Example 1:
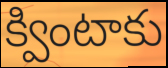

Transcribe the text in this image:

క్వింటాకు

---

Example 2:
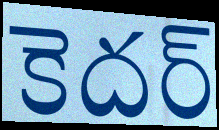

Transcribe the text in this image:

కెదర్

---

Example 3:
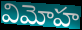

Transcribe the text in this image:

విమోహ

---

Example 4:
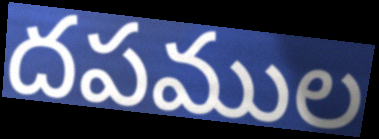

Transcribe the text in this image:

దపముల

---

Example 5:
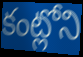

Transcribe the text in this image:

కంట్లోని